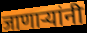
जाणाऱ्यांनी